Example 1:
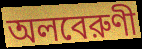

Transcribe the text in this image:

অলবেরুণী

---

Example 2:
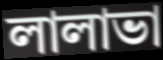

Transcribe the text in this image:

লালাভা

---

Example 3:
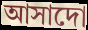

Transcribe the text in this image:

আসাদো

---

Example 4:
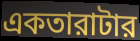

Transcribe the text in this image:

একতারাটার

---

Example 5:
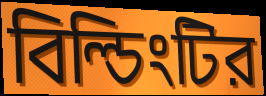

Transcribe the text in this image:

বিল্ডিংটির